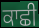
ਕਾਛੀ